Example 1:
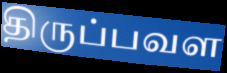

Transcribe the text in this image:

திருப்பவள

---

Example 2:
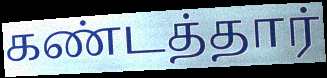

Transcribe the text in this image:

கண்டத்தார்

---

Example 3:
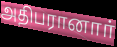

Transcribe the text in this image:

அதிபரானார்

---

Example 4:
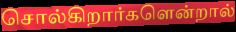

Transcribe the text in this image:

சொல்கிறார்களென்றால்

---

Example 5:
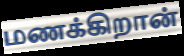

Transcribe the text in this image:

மணக்கிறான்